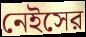
নেইসের